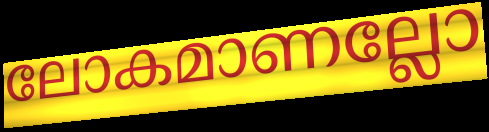
ലോകമാണല്ലോ